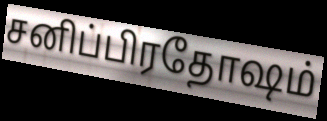
சனிப்பிரதோஷம்